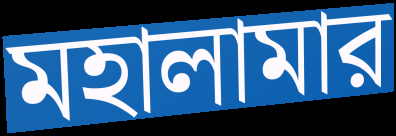
মহালামার